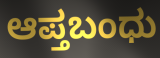
ಆಪ್ತಬಂಧು